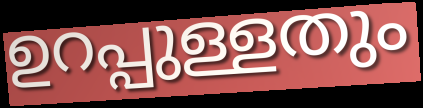
ഉറപ്പുള്ളതും